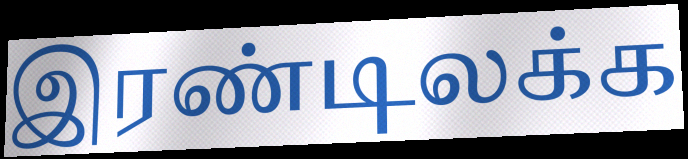
இரண்டிலக்க